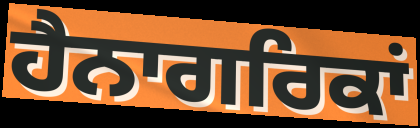
ਹੈਨਾਗਰਿਕਾਂ